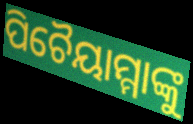
ପିଚୈୟାମ୍ମାଙ୍କୁ